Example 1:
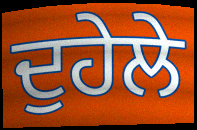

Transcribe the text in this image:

ਦੁਹੇਲੇ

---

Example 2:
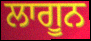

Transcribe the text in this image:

ਲਾਗੂਨ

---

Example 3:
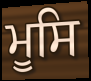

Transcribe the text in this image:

ਮੂਸਿ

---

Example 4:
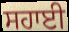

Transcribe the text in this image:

ਸਹਾਈ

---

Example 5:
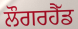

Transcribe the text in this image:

ਲੌਗਰਹੈੱਡ